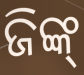
ଜିଙ୍କ୍